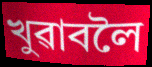
খুৱাবলৈ